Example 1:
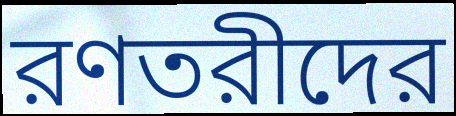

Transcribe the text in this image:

রণতরীদের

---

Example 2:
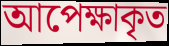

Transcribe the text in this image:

আপেক্ষাকৃত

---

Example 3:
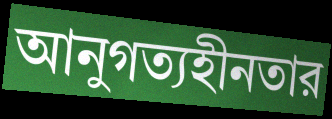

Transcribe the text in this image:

আনুগত্যহীনতার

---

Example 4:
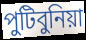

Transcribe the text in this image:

পুটিবুনিয়া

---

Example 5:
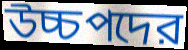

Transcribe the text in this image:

উচ্চপদের